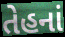
તેહનાં